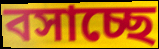
বসাচ্ছে